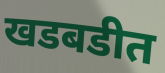
खडबडीत